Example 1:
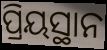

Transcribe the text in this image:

ପ୍ରିୟସ୍ଥାନ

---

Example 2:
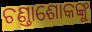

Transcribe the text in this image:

ଚଣ୍ଡାଶୋକଙ୍କୁ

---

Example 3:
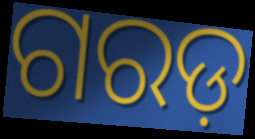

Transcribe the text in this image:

ଗରଡ଼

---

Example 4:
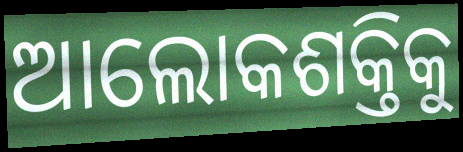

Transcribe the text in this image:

ଆଲୋକଶକ୍ତିକୁ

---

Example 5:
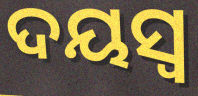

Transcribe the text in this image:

ଦୟସ୍ଵ